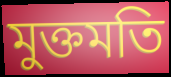
মুক্তমতি